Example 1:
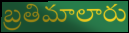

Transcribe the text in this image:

బ్రతిమాలారు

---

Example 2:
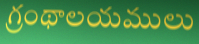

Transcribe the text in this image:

గ్రంథాలయములు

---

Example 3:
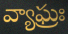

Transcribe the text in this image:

వ్యాఘ్రః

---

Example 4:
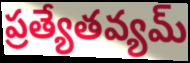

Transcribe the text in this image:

ప్రత్యేతవ్యమ్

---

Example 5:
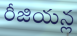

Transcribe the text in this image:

రీజియన్ల